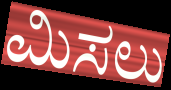
ಮಿಸಲು